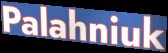
Palahniuk